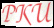
PKU